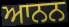
ਆਨਨ